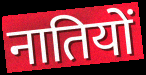
नातियों